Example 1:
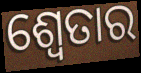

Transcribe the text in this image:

ଶ୍ୱେତାର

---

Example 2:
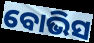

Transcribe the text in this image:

ବୋଭିସ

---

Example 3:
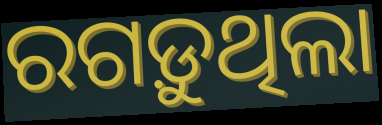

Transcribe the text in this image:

ରଗଡ଼ୁଥିଲା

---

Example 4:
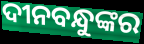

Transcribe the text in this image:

ଦୀନବନ୍ଧୁଙ୍କର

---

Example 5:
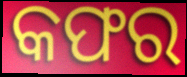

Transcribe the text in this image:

କଫର